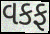
વકફ